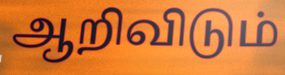
ஆறிவிடும்